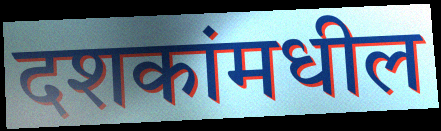
दशकांमधील